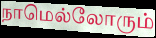
நாமெல்லோரும்